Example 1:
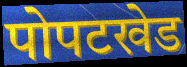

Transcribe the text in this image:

पोपटखेड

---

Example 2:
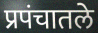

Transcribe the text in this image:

प्रपंचातले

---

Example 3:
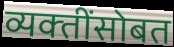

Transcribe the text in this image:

व्यक्‍तींसोबत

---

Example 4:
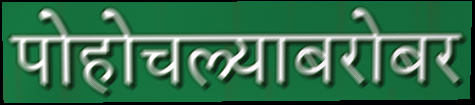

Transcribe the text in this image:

पोहोचल्याबरोबर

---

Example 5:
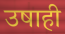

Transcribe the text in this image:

उषाही